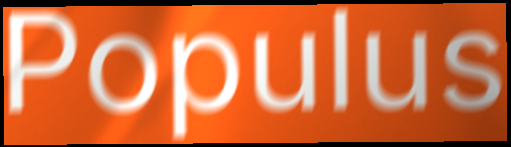
Populus